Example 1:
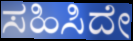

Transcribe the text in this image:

ಸಹಿಸಿದೇ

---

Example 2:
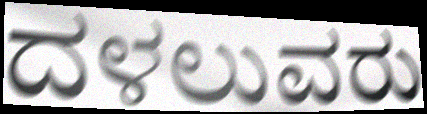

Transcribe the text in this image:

ದಳಲುವರು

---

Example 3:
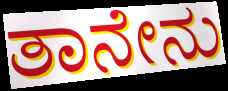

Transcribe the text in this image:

ತಾನೇನು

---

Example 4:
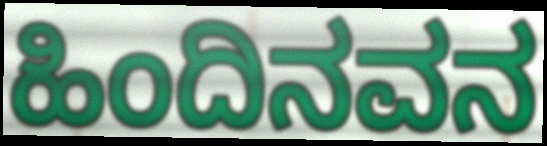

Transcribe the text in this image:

ಹಿಂದಿನವನ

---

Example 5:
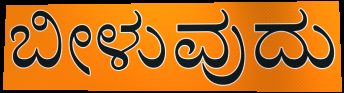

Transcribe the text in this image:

ಬೀಳುವುದು